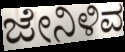
ಜೇನಿಳಿವ